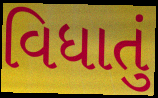
વિધાતું